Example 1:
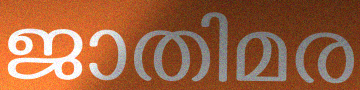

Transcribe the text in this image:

ജാതിമര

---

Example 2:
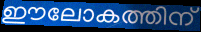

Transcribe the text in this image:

ഈലോകത്തിന്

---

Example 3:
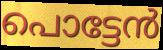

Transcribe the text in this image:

പൊട്ടേൻ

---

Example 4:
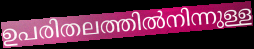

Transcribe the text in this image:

ഉപരിതലത്തിൽനിന്നുള്ള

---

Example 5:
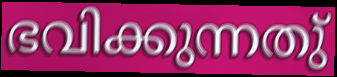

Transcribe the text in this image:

ഭവിക്കുന്നതു്